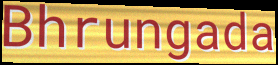
Bhrungada